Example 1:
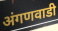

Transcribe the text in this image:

अंगणवाडी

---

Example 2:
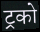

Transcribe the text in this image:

ट्रको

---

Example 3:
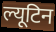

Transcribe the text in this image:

ल्यूटिन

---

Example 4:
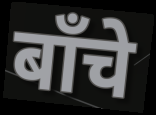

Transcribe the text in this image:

बाँचे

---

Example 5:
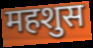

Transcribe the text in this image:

महशुस